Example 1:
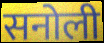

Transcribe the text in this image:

सनोली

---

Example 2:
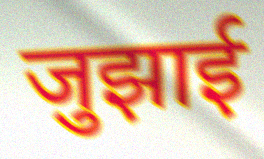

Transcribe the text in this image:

जुझाई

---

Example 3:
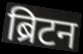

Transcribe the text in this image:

ब्रिटन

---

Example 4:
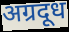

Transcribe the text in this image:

अग्रदूध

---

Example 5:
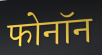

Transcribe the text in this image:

फोनॉन